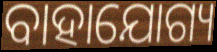
ବାହାଯୋଗ୍ୟ